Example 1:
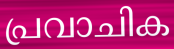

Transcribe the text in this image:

പ്രവാചിക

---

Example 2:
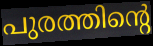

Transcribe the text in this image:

പുരത്തിന്റെ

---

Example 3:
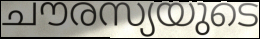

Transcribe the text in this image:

ചൗരസ്യയുടെ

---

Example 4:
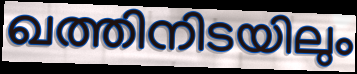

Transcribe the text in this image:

ഖത്തിനിടയിലും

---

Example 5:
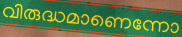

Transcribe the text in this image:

വിരുദ്ധമാണെന്നോ